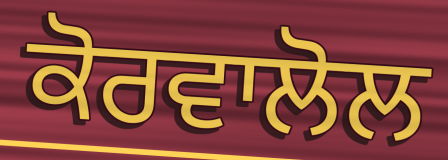
ਕੋਰਵਾਲੋਲ